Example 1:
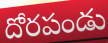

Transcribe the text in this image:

దోరపండు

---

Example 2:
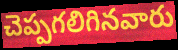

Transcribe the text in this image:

చెప్పగలిగినవారు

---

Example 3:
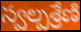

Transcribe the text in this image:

స్వల్పశ్రేణి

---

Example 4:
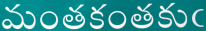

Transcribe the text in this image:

మంతకంతకుఁ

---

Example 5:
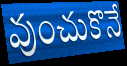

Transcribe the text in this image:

వుంచుకొనే